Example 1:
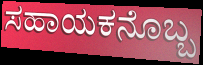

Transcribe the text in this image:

ಸಹಾಯಕನೊಬ್ಬ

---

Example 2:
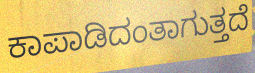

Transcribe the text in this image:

ಕಾಪಾಡಿದಂತಾಗುತ್ತದೆ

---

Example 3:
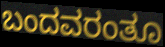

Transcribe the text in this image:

ಬಂದವರಂತೂ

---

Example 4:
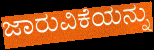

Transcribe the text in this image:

ಜಾರುವಿಕೆಯನ್ನು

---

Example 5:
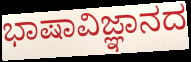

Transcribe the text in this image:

ಭಾಷಾವಿಜ್ಞಾನದ